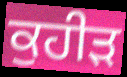
ਕੁਹੀੜ